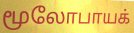
மூலோபாயக்